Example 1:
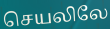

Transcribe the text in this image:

செயலிலே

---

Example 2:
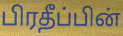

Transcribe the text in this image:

பிரதீப்பின்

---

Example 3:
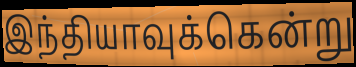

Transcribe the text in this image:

இந்தியாவுக்கென்று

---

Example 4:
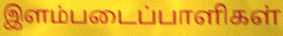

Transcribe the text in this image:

இளம்படைப்பாளிகள்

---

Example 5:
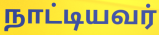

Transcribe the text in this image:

நாட்டியவர்